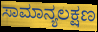
ಸಾಮಾನ್ಯಲಕ್ಷಣ